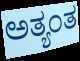
ಅತ್ಯಂತ